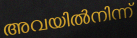
അവയിൽനിന്ന്